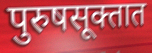
पुरुषसूक्तात